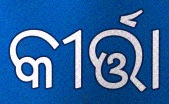
କୀର୍ତ୍ତା